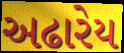
અઢારેય